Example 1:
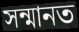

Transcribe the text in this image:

সন্মানত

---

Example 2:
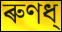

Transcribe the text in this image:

ৰুণধ্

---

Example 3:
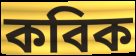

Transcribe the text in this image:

কবিক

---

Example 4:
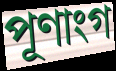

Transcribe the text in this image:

পূণাংগ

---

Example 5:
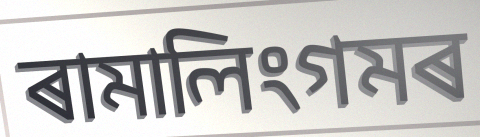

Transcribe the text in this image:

ৰামালিংগমৰ